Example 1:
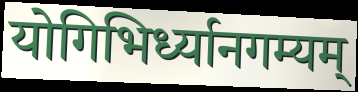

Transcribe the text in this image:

योगिभिर्ध्यानगम्यम्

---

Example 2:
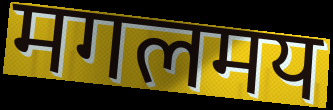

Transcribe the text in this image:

मगलमय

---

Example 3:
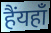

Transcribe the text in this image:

हैंयहाँ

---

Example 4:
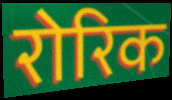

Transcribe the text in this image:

रोरिक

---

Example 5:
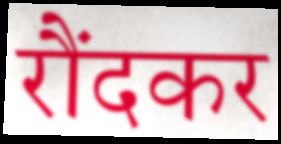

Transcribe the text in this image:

रौंदकर